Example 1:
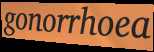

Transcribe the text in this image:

gonorrhoea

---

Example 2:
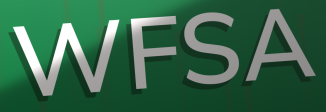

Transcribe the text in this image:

WFSA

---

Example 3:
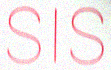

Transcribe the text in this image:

SIS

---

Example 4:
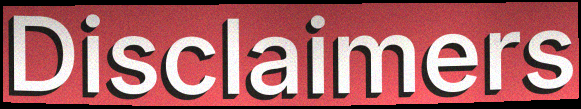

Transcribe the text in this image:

Disclaimers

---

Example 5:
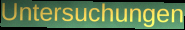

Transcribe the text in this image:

Untersuchungen